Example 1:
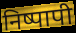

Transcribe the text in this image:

निष्पापी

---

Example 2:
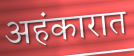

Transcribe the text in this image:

अहंकारात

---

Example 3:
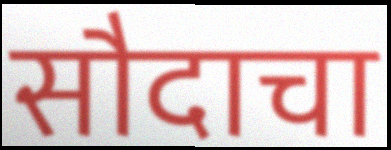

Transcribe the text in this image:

सौदाचा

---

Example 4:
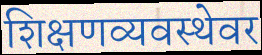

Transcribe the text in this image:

शिक्षणव्यवस्थेवर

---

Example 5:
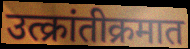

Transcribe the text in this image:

उत्क्रांतीक्रमात